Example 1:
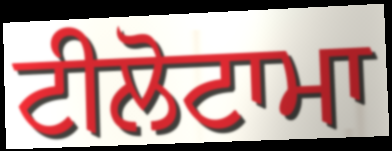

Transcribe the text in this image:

ਟੀਲੋਟਾਮਾ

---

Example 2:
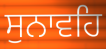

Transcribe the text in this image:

ਸੁਨਾਵਹਿ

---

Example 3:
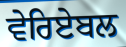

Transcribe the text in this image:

ਵੇਰਿਏਬਲ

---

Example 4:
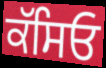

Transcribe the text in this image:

ਕੱਸਿਓ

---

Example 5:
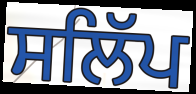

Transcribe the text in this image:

ਸਲਿੱਪ